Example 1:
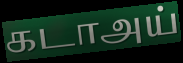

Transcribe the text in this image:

கடாஅய்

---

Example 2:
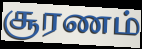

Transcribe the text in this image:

சூரணம்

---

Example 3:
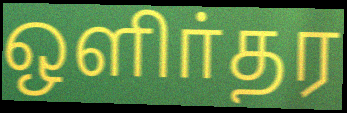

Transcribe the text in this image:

ஒளிர்தர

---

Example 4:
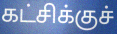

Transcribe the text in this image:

கட்சிக்குச்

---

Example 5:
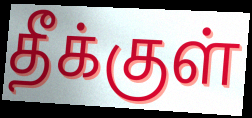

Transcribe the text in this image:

தீக்குள்